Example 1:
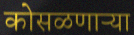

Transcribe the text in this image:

कोसळणाऱ्या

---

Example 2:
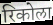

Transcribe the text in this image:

रिकोला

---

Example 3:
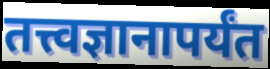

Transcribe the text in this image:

तत्त्वज्ञानापर्यंत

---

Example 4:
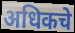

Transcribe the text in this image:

अधिकचे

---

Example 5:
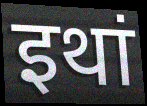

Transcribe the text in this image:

इथां